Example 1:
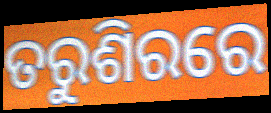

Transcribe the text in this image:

ତରୁଶିରରେ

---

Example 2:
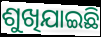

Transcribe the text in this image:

ଶୁଖିଯାଇଛି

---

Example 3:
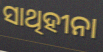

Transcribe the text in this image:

ସାଥିହୀନା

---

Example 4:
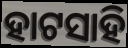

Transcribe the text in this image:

ହାଟସାହି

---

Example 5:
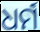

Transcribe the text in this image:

ଧର୍ମ